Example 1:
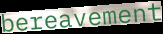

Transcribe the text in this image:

bereavement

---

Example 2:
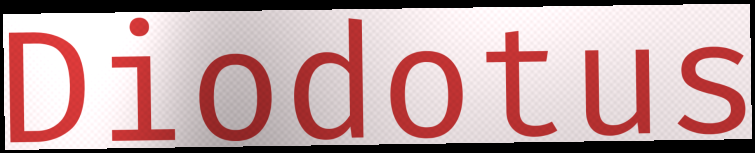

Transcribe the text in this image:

Diodotus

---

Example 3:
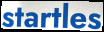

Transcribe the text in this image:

startles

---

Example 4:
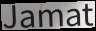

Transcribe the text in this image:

Jamat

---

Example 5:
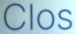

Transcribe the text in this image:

Clos